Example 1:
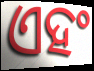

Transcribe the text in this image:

ଏହଂ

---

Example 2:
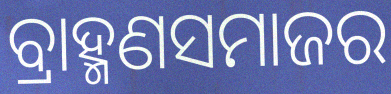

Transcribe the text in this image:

ବ୍ରାହ୍ମଣସମାଜର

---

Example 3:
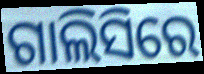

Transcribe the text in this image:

ଗାଲିସିରେ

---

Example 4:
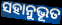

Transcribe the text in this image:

ସହାନୁଭୂତ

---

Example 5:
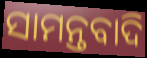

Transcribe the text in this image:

ସାମନ୍ତବାଦି